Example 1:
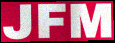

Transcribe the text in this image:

JFM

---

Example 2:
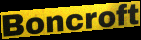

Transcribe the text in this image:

Boncroft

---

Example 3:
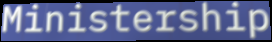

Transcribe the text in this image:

Ministership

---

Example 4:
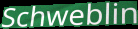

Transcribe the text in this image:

Schweblin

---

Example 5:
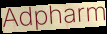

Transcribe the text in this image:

Adpharm